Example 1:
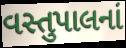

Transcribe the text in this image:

વસ્તુપાલનાં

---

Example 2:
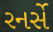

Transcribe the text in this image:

રનર્સે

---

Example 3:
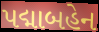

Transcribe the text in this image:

પદ્માબહેન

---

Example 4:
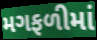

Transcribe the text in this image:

મગફળીમાં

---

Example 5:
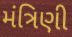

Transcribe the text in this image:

મંત્રિણી